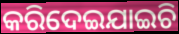
କରିଦେଇଯାଇଚି